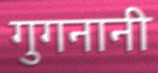
गुगनानी